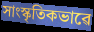
সাংস্কৃতিকভাৱে